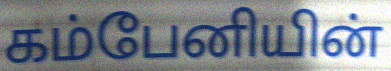
கம்பேனியின்